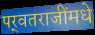
पर्वतराजींमधे